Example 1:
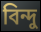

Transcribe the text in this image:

বিন্দু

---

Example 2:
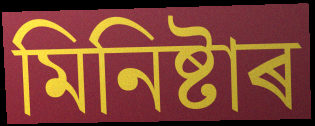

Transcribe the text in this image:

মিনিষ্টাৰ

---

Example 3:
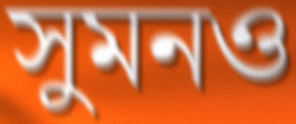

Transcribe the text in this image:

সুমনও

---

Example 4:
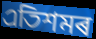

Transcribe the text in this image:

এতিশমৰ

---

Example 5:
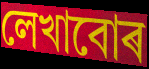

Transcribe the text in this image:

লেখাবোৰ